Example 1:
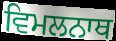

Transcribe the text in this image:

ਵਿਮਲਨਾਥ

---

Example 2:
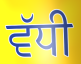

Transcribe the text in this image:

ਵੱਧੀ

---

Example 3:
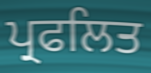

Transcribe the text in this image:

ਪ੍ਰਫਲਿਤ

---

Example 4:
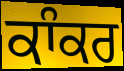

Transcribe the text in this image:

ਕਾੰਕਰ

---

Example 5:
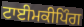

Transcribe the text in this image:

ਟਾਈਮਕੀਪਿੰਗ